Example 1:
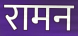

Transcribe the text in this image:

रामन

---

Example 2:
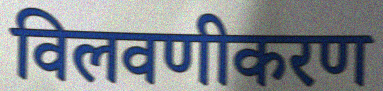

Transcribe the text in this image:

विलवणीकरण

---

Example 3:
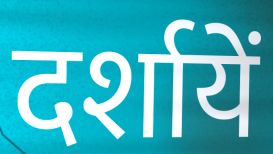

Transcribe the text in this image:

दर्शायें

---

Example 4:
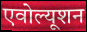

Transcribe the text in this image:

एवोल्यूशन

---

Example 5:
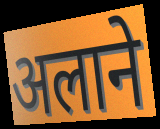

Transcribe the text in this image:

अलाने